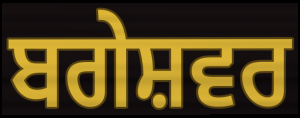
ਬਗੇਸ਼ਵਰ